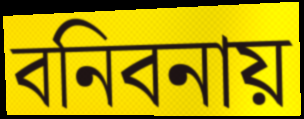
বনিবনায়